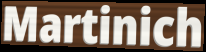
Martinich